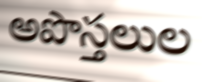
అపొస్తలుల